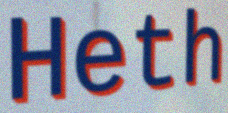
Heth